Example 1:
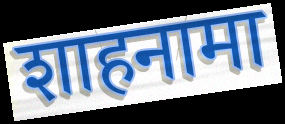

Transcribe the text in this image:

शाहनामा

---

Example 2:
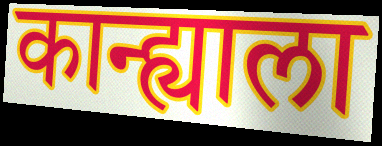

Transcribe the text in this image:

कान्ह्याला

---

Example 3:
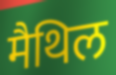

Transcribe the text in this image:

मैथिल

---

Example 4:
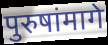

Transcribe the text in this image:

पुरुषांमागे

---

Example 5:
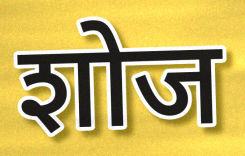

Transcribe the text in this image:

शोज